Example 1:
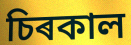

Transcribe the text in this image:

চিৰকাল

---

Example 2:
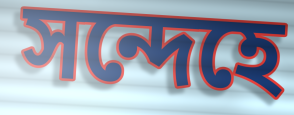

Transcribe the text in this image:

সন্দেহে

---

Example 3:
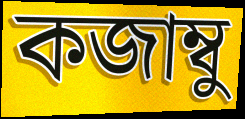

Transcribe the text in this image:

কজাম্বু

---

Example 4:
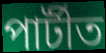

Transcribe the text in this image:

পাৰ্টীত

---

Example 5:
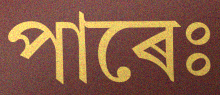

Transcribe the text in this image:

পাৰেঃ